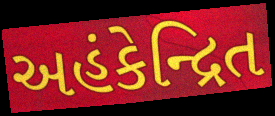
અહંકેન્દ્રિત